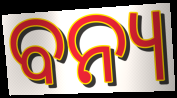
ବନ୍ୟ